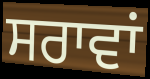
ਸਰਾਵਾਂ